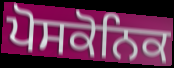
ਪੋਸਕੋਨਿਕ